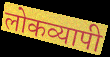
लोकव्यापी